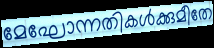
മേഘോന്നതികൾക്കുമീതേ